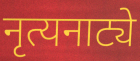
नृत्यनाट्ये